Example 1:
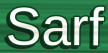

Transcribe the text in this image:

Sarf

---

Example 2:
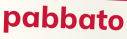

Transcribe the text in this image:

pabbato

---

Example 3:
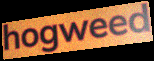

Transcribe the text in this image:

hogweed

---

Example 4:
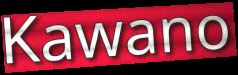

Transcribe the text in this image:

Kawano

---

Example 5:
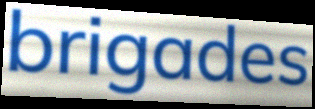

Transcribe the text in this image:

brigades